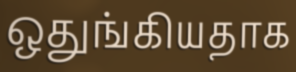
ஒதுங்கியதாக